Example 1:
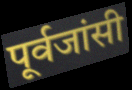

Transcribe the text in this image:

पूर्वजांसी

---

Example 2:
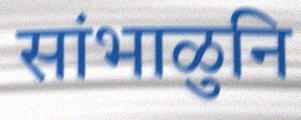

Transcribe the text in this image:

सांभाळुनि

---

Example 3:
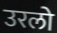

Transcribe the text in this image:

उरलो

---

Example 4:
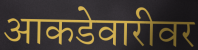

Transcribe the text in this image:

आकडेवारीवर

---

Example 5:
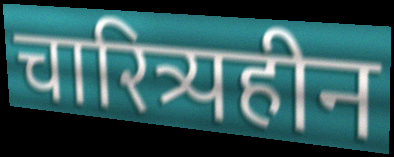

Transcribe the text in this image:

चारित्र्यहीन